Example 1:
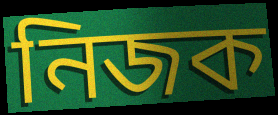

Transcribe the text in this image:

নিজক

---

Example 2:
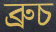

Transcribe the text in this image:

ব্ৰুচ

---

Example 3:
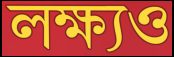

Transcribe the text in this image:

লক্ষ্যও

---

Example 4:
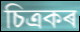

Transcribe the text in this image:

চিত্ৰকৰ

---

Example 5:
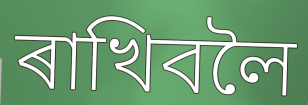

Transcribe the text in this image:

ৰাখিবলৈ